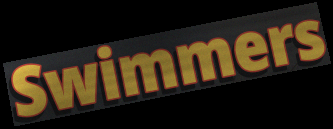
Swimmers